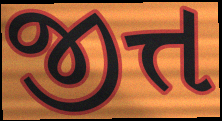
જીત્ત